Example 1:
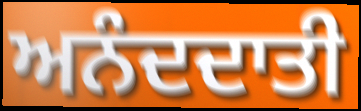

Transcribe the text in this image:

ਅਨੰਦਦਾਤੀ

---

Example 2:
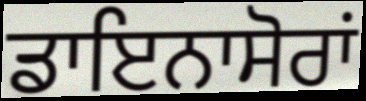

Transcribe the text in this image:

ਡਾਇਨਾਸੋਰਾਂ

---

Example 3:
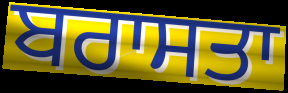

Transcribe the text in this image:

ਬਰਾਸਤਾ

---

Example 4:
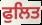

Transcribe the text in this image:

ਫੁਲਿਤ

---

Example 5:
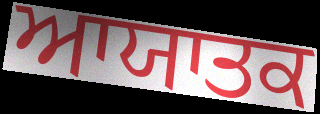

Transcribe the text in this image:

ਆਯਾਤਕ